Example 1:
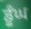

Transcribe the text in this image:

ਡੂੰਘ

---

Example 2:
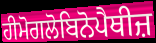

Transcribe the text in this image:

ਹੀਮੋਗਲੋਬਿਨੋਪੈਥੀਜ਼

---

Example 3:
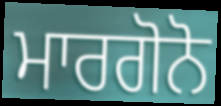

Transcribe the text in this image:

ਮਾਰਗੋਨੋ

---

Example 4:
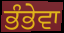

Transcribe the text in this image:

ਭੰਭੇਵਾ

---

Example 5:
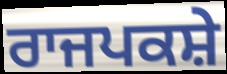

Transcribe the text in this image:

ਰਾਜਪਕਸ਼ੇ